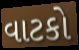
વાટકો